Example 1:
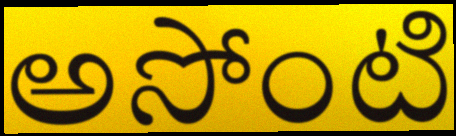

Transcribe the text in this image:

అసోంటి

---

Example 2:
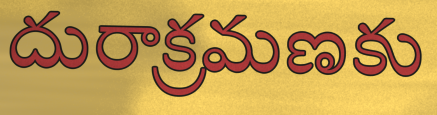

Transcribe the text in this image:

దురాక్రమణకు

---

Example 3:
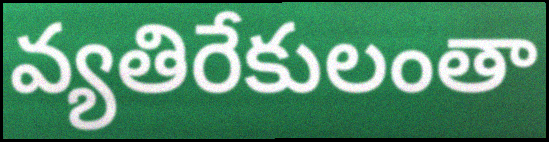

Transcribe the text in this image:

వ్యతిరేకులంతా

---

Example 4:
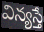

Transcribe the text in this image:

విన్యస్తే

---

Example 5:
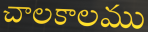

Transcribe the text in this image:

చాలకాలము